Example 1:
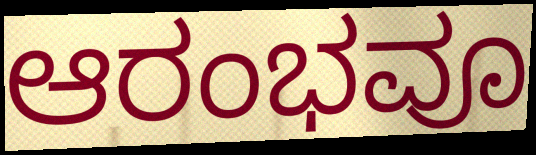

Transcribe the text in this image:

ಆರಂಭವೂ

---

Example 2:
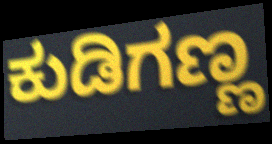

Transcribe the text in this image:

ಕುಡಿಗಣ್ಣ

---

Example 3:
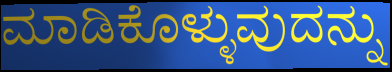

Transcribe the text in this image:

ಮಾಡಿಕೊಳ್ಳುವುದನ್ನು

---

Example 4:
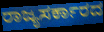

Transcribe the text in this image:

ರಾಜ್ಯಸರ್ಕಾರದ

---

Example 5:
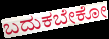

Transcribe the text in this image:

ಬದುಕಬೇಕೋ